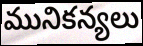
మునికన్యలు